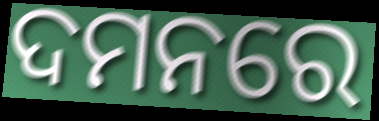
ଦମନରେ